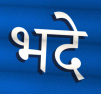
भदे